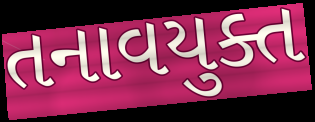
તનાવયુક્ત